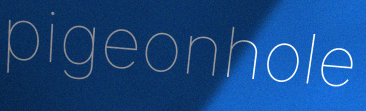
pigeonhole